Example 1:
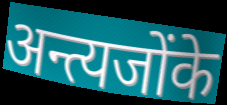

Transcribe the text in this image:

अन्त्यजोंके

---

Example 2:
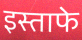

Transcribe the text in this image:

इस्ताफे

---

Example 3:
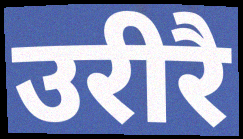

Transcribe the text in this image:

उरीरै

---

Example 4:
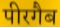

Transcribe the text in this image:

पीरगैब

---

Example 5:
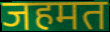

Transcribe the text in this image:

जहमत